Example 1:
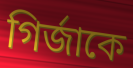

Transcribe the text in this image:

গির্জাকে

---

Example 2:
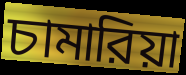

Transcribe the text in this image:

চামারিয়া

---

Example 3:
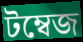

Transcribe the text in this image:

টম্বেজ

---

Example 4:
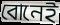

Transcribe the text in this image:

বোনেই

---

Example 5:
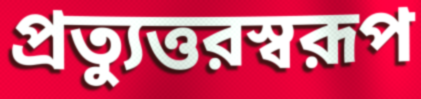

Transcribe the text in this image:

প্রত্যুত্তরস্বরূপ